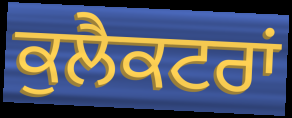
ਕੁਲੈਕਟਰਾਂ